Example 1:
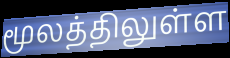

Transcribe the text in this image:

மூலத்திலுள்ள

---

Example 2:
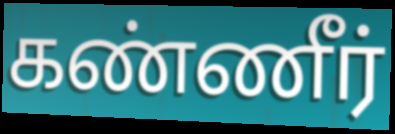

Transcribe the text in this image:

கண்ணீர்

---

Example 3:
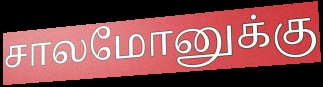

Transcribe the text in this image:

சாலமோனுக்கு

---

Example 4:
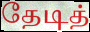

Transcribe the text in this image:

தேடித்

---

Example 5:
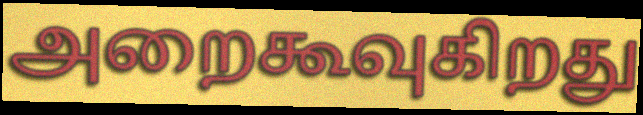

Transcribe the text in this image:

அறைகூவுகிறது